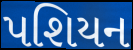
પશિયન